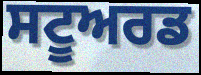
ਸਟੂਅਰਡ